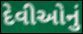
દેવીઓનું